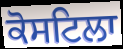
ਕੋਸਟਿਲਾ